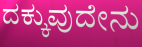
ದಕ್ಕುವುದೇನು